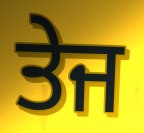
ਤੇਜ